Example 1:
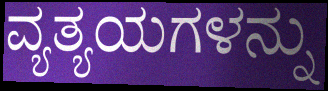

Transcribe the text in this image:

ವ್ಯತ್ಯಯಗಳನ್ನು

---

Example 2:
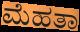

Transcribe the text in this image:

ಮೆಹತಾ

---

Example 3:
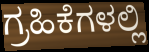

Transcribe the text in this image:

ಗ್ರಹಿಕೆಗಳಲ್ಲಿ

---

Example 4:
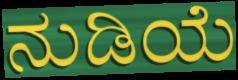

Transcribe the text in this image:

ನುಡಿಯೆ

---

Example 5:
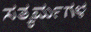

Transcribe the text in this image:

ಸತ್ಕರ್ಮಗಳ